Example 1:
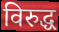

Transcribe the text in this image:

विरुद्ध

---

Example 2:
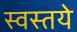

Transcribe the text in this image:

स्वस्तये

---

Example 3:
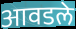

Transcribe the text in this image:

आवडले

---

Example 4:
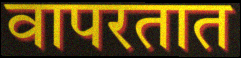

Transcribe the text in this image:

वापरतात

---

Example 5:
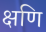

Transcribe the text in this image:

क्षणि